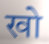
खो